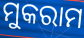
ମୁକରାମ